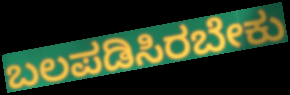
ಬಲಪಡಿಸಿರಬೇಕು